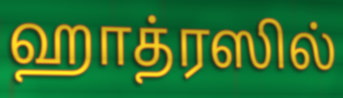
ஹாத்ரஸில்